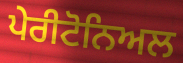
ਪੇਰੀਟੋਨਿਅਲ